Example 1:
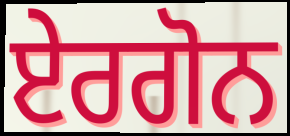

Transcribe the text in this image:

ਏਰਗੋਨ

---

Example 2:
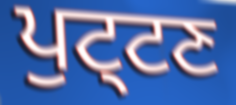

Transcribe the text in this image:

ਪੁਟ੍ਟਣ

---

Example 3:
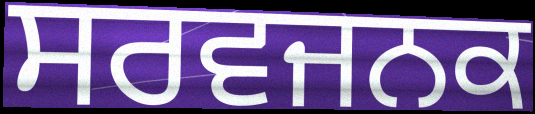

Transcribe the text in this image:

ਸਰਵਜਨਕ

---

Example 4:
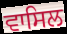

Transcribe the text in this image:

ਵਾਸਿਲ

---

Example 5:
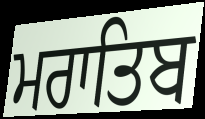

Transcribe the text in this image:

ਮਰਾਤਿਬ